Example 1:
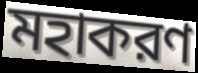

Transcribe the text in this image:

মহাকরণ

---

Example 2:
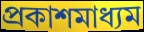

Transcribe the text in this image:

প্রকাশমাধ্যম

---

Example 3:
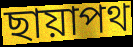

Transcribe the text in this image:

ছায়াপথ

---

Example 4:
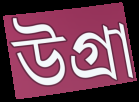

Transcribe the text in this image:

উগ্রা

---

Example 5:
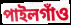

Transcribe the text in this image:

পাইলগাঁও